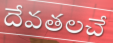
దేవతలచే